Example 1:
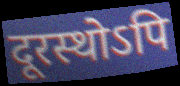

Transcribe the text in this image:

दूरस्थोऽपि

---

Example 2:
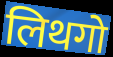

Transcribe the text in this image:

लिथगो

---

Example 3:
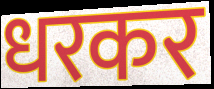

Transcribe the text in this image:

धरकर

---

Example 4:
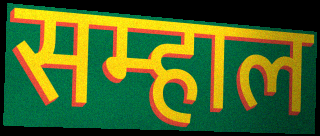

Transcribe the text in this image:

सम्हाल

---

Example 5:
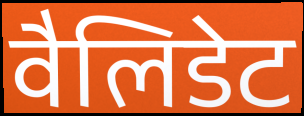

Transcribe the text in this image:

वैलिडेट